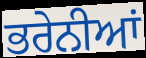
ਭਰੇਨੀਆਂ